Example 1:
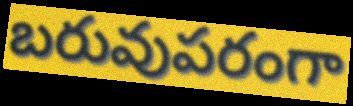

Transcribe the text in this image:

బరువుపరంగా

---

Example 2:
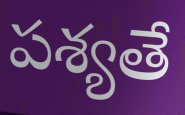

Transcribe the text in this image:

పశ్యతే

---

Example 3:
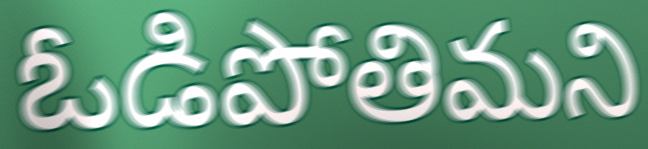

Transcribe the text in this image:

ఓడిపోతిమని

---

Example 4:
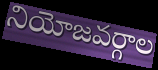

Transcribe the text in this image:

నియోజవర్గాల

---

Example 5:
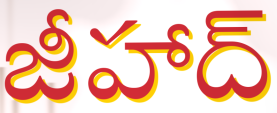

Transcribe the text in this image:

జీహాద్